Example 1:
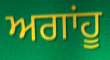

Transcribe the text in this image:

ਅਗਾਂਹੂ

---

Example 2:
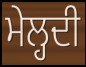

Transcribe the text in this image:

ਮੇਲ੍ਹਦੀ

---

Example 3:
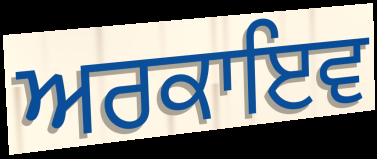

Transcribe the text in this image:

ਅਰਕਾਇਵ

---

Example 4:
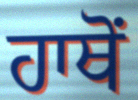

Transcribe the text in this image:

ਹਾਥੋਂ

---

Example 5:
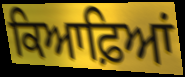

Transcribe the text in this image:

ਕਿਆਫ਼ਿਆਂ